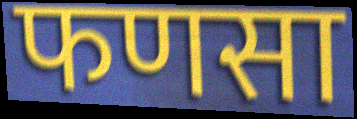
फणसा